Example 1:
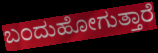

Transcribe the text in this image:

ಬಂದುಹೋಗುತ್ತಾರೆ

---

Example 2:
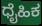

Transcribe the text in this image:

ಧೈಹಿಕ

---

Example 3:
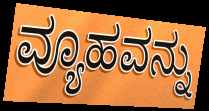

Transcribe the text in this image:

ವ್ಯೂಹವನ್ನು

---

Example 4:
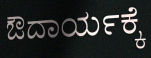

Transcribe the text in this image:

ಔದಾರ್ಯಕ್ಕೆ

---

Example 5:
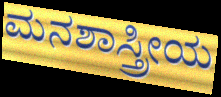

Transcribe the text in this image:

ಮನಶಾಸ್ತ್ರೀಯ